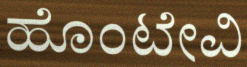
ಹೊಂಟೇವಿ